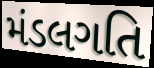
મંડલગતિ